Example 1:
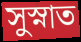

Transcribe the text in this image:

সুস্নাত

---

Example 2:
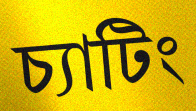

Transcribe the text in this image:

চ্যাটিং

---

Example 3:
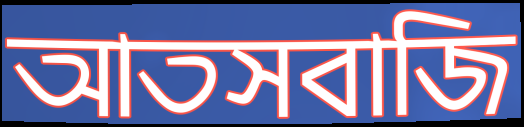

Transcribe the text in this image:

আতসবাজি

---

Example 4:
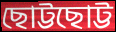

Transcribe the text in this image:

ছোট্টছোট্ট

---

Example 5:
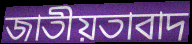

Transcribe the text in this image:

জাতীয়তাবাদ